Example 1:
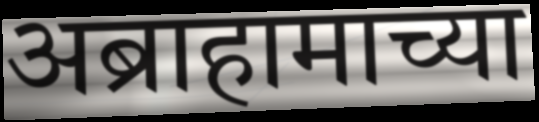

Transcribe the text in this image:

अब्राहामाच्या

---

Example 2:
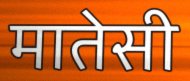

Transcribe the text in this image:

मातेसी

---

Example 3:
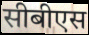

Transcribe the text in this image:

सीबीएस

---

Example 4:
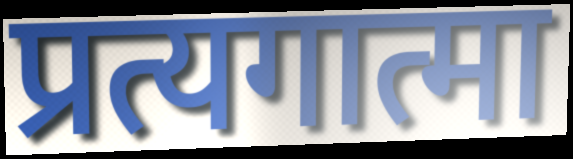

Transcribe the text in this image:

प्रत्यगात्मा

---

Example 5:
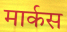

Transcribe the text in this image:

मार्कस